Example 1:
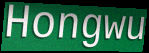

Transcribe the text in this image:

Hongwu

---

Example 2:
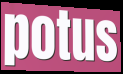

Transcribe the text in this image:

potus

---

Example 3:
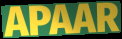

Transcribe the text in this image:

APAAR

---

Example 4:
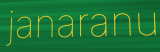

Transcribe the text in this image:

janaranu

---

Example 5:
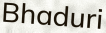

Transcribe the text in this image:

Bhaduri